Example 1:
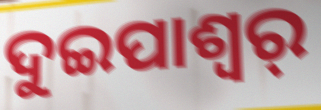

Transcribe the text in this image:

ଦୁଇପାଶ୍ୱର୍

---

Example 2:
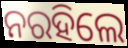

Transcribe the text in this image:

ନରହିଲେ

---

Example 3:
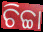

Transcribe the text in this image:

ଚିଚ୍ଚା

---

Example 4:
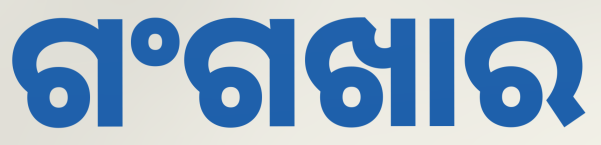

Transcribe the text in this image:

ଗଂଗଖାର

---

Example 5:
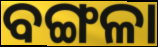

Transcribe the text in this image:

ବଙ୍ଗଳା